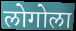
लोगोला